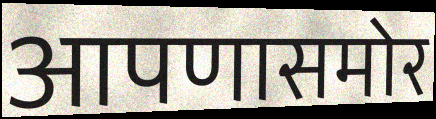
आपणासमोर